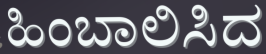
ಹಿಂಬಾಲಿಸಿದ